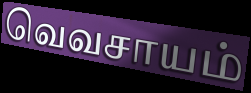
வெவசாயம்